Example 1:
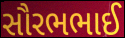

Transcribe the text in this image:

સૌરભભાઈ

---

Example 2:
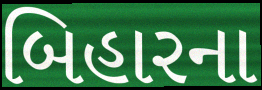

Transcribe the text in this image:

બિહારના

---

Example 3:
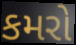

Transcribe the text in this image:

કમરો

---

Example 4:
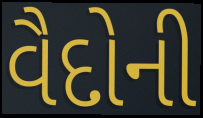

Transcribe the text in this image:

વૈદોની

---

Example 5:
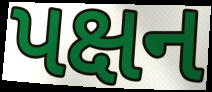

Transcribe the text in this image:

પક્ષન